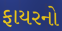
ફાયરનો